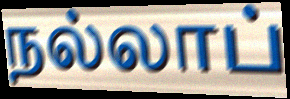
நல்லாப்